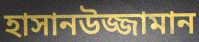
হাসানউজ্জামান